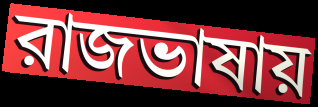
রাজভাষায়